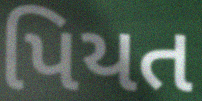
પિયત